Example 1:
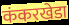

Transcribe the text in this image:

कंकरखेडा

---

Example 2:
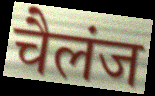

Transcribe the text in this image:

चैलंज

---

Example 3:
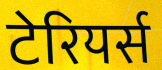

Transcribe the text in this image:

टेरियर्स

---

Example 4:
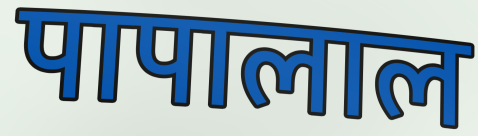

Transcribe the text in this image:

पापालाल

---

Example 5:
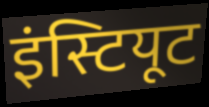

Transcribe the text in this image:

इंस्टियूट